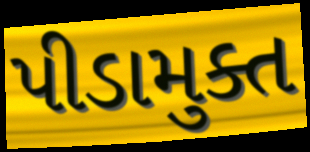
પીડામુક્ત